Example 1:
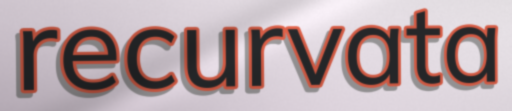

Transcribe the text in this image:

recurvata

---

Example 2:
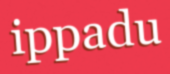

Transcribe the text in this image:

ippadu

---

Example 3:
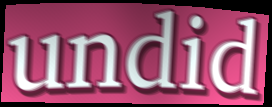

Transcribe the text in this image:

undid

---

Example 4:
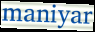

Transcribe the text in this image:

maniyar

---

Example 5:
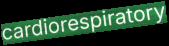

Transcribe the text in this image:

cardiorespiratory